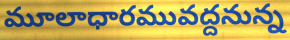
మూలాధారమువద్దనున్న